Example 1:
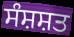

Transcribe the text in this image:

ਸੰਸ਼ਸ਼ਤ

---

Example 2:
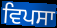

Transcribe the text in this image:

ਵਿਪਸਾ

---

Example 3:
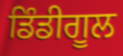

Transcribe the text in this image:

ਡਿੰਡੀਗੂਲ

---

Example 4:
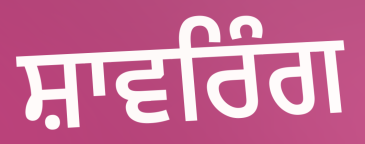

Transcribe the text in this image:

ਸ਼ਾਵਰਿੰਗ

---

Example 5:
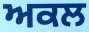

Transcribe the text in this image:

ਅਕਲ